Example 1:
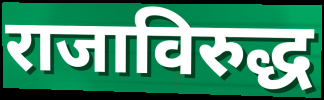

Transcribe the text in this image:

राजाविरुद्ध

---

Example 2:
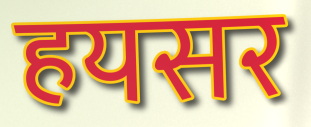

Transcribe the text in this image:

हयसर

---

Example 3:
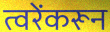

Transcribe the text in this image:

त्वरेंकरून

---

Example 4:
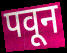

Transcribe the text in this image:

पवून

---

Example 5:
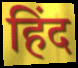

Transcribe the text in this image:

हिंद